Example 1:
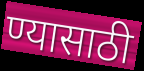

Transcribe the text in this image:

ण्यासाठी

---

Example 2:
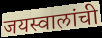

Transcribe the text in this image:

जयस्वालांची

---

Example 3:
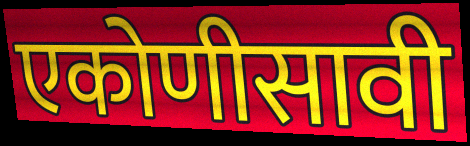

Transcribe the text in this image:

एकोणीसावी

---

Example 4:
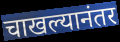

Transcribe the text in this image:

चाखल्यानंतर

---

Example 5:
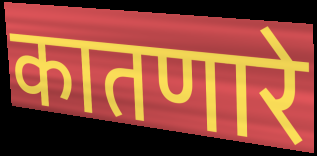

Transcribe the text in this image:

कातणारे